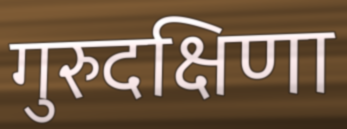
गुरुदक्षिणा